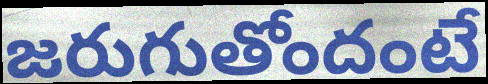
జరుగుతోందంటే